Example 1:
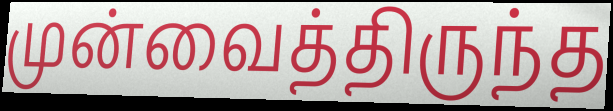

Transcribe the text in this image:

முன்வைத்திருந்த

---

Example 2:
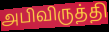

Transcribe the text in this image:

அபிவிருத்தி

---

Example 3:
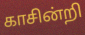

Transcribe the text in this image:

காசின்றி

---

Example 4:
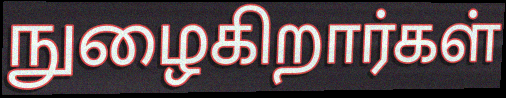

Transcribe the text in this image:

நுழைகிறார்கள்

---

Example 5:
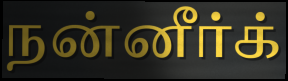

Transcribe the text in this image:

நன்னீர்க்